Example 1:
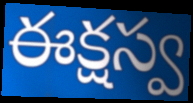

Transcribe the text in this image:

ఈక్షస్వ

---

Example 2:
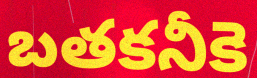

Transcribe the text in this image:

బతకనీకె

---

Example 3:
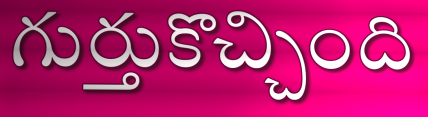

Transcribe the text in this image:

గుర్తుకొచ్చింది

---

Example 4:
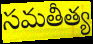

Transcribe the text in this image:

సమతీత్య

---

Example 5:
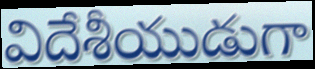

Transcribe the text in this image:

విదేశీయుడుగా